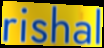
rishal